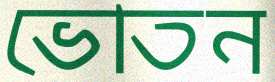
ভোতন